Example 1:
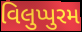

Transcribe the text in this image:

વિલુપ્પુરમ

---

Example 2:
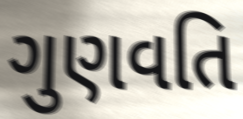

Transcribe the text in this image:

ગુણવતિ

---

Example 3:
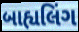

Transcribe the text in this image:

બાહ્યલિંગ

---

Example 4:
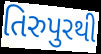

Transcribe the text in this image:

તિરુપુરથી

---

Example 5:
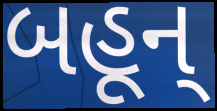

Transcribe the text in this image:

બહૂન્